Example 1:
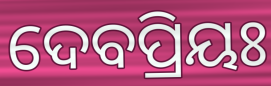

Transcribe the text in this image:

ଦେବପ୍ରିୟଃ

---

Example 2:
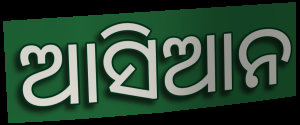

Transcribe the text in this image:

ଆସିଆନ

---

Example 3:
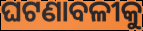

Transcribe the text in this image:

ଘଟଣାବଳୀକୁ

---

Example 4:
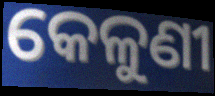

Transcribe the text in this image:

କେଳୁଣୀ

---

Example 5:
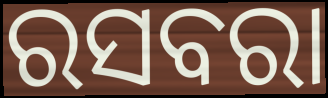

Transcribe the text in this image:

ରସବରା